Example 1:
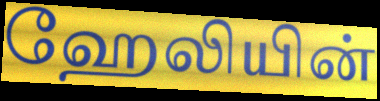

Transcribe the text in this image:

ஹேலியின்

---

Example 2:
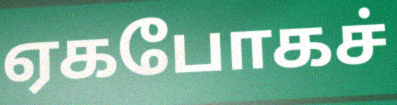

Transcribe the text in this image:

ஏகபோகச்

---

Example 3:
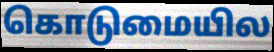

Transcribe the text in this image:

கொடுமையில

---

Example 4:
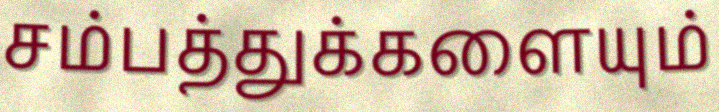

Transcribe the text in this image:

சம்பத்துக்களையும்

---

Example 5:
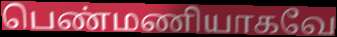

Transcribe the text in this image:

பெண்மணியாகவே